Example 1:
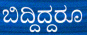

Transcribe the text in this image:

ಬಿದ್ದಿದ್ದರೂ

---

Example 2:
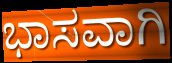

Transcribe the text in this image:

ಭಾಸವಾಗಿ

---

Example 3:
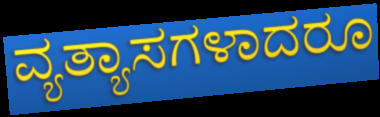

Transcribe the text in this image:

ವ್ಯತ್ಯಾಸಗಳಾದರೂ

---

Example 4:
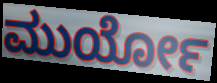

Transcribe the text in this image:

ಮುರ್ಯೋ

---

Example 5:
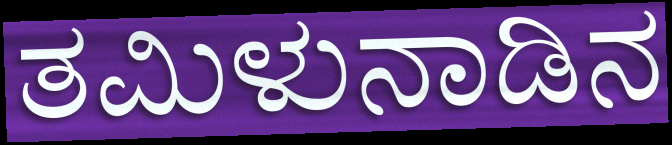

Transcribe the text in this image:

ತಮಿಳುನಾಡಿನ